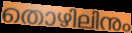
തൊഴിലിനും